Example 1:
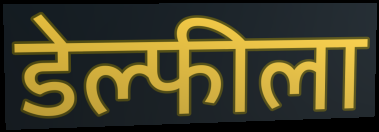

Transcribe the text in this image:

डेल्फीला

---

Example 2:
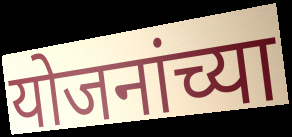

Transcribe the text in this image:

योजनांच्या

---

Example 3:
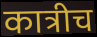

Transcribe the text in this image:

कात्रीच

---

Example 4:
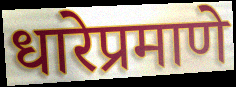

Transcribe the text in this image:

धारेप्रमाणे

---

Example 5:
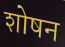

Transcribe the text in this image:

शोषन